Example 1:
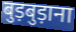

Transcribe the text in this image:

बुड़बुड़ाना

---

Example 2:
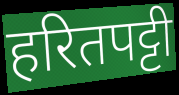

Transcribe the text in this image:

हरितपट्टी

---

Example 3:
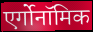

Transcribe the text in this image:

एर्गोनॉमिक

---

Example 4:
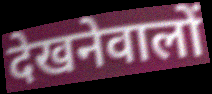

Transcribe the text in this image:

देखनेवालों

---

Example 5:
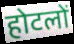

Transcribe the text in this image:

होटलों